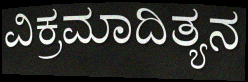
ವಿಕ್ರಮಾದಿತ್ಯನ